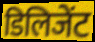
डिलिजेंट